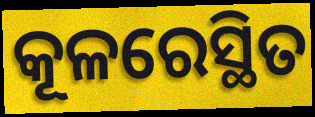
କୂଳରେସ୍ଥିତ